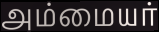
அம்மையர்